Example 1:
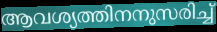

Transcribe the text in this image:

ആവശ്യത്തിനനുസരിച്ച്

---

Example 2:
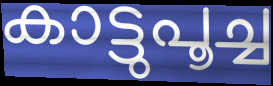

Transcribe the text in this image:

കാട്ടുപൂച്ച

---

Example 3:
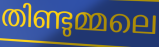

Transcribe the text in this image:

തിണ്ടുമ്മലെ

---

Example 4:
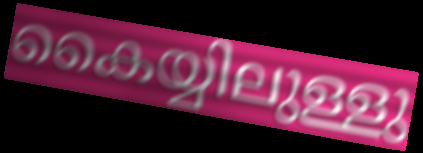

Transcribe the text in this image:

കൈയ്യിലുള്ളു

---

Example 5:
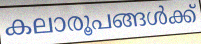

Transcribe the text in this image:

കലാരൂപങ്ങൾക്ക്